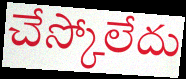
చేస్కోలేదు